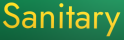
Sanitary